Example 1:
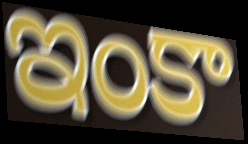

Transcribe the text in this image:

ఇంకా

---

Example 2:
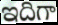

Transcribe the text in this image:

ఇదిగా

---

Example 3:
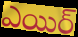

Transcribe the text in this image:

ఎయిర్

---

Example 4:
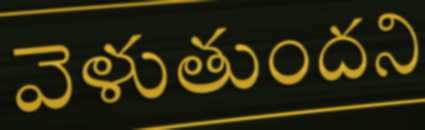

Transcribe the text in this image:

వెళుతుందని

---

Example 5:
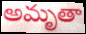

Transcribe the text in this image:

అమృతా